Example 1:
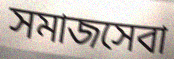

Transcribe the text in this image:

সমাজসেবা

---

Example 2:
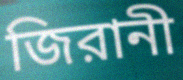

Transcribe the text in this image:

জিরানী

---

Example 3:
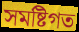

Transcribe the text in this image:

সমষ্টিগত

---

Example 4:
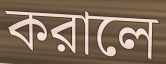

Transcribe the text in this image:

করালে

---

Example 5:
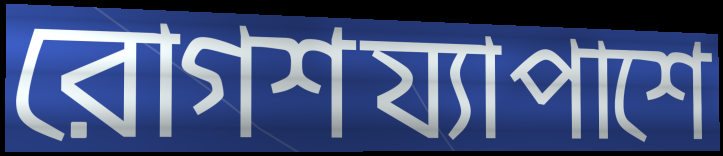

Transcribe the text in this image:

রোগশয্যাপাশে